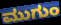
ಮುಗುಂ